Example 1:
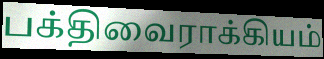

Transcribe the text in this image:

பக்திவைராக்கியம்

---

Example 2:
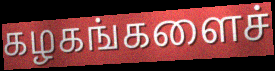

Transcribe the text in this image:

கழகங்களைச்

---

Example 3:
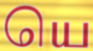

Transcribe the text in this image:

யெ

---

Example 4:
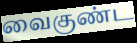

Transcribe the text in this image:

வைகுண்ட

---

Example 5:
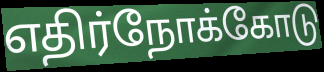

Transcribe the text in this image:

எதிர்நோக்கோடு